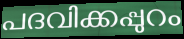
പദവിക്കപ്പുറം